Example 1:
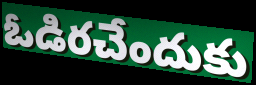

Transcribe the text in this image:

ఓడిరచేందుకు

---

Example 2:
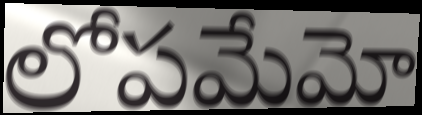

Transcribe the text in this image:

లోపమేమో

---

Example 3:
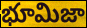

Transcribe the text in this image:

భూమిజా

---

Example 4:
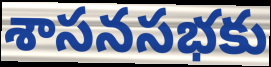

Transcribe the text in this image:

శాసనసభకు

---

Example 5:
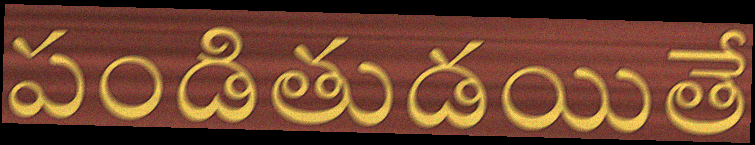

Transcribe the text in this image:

పండితుడయితే